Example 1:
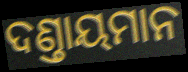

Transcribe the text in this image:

ଦଣ୍ତାୟମାନ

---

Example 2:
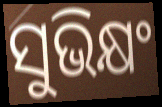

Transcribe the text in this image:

ସୁଭିକ୍ଷଂ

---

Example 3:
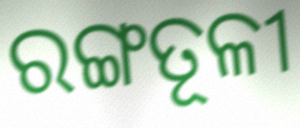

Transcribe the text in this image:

ରଙ୍ଗତୂଳୀ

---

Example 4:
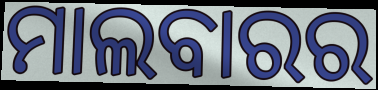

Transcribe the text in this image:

ମାଲବାରର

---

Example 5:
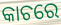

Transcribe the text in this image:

କାଚରେ